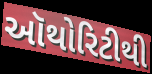
ઑથોરિટીથી